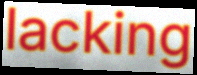
lacking